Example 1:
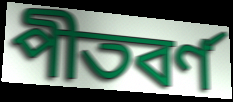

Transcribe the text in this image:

পীতবর্ণ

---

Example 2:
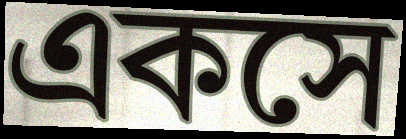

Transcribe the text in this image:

একসে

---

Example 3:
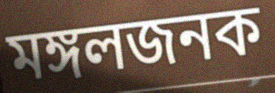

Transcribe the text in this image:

মঙ্গলজনক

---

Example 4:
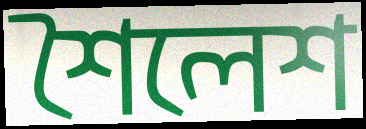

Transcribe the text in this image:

শৈলেশ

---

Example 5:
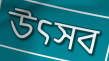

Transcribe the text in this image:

উত্‍সব